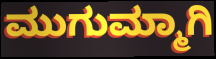
ಮುಗುಮ್ಮಾಗಿ